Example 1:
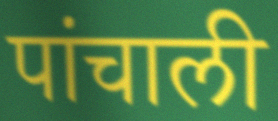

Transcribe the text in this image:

पांचाली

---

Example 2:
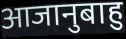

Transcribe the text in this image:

आजानुबाहु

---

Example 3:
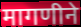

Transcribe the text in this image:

मागणीने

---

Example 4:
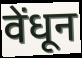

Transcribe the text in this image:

वेंधून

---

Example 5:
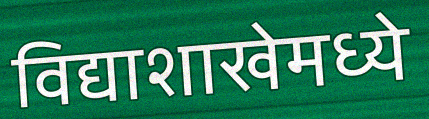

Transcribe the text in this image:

विद्याशाखेमध्ये